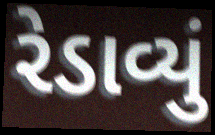
રેડાવ્યું